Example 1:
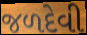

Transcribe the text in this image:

જળદેવી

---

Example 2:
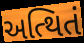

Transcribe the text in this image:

અત્થિતં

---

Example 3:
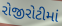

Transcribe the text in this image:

રોજીરોટીમાં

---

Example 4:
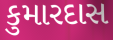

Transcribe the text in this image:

કુમારદાસ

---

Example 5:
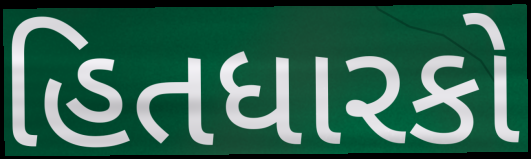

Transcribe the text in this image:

હિતધારકો